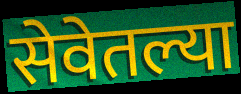
सेवेतल्या